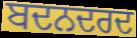
ਬਦਨਦਰਦ